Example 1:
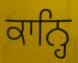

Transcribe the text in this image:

ਕਾਨ੍ਹਿ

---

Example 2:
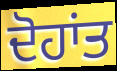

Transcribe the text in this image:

ਦੋਹਾਂਤ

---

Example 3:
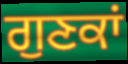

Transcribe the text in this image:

ਗੁਣਕਾਂ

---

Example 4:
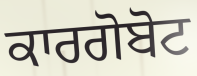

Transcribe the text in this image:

ਕਾਰਗੋਬੋਟ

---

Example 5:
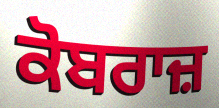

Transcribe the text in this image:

ਕੋਬਰਾਜ਼